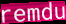
remdu